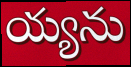
య్యను